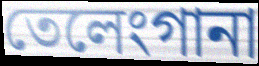
তেলেংগানা